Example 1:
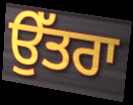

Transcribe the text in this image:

ਉੱਤਰਾ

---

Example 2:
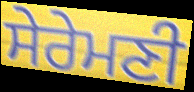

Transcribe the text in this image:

ਸੇਰੇਮਣੀ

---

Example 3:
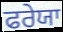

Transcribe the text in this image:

ਫਰੇਯਾ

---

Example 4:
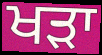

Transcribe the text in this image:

ਖਡ਼ਾ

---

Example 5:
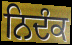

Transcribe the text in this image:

ਨਿਦੰਕ